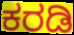
ಕರಡಿ